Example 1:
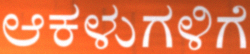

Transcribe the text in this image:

ಆಕಳುಗಳಿಗೆ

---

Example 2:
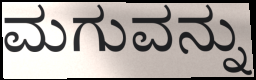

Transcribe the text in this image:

ಮಗುವನ್ನು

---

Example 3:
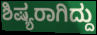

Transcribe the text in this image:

ಶಿಷ್ಯರಾಗಿದ್ದು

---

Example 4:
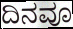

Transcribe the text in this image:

ದಿನವೂ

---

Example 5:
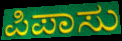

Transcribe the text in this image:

ಪಿಪಾಸು